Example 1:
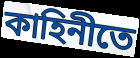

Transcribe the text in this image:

কাহিনীতে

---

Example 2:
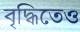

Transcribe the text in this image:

বৃদ্ধিতেও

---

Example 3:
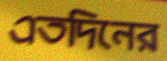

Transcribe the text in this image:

এতদিনের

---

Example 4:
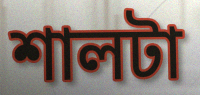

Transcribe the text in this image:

শালটা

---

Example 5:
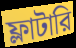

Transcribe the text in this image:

ফ্লাটারি